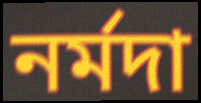
নর্মদা